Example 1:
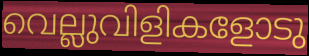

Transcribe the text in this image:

വെല്ലുവിളികളോടു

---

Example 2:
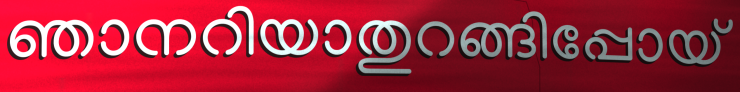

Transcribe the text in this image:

ഞാനറിയാതുറങ്ങിപ്പോയ്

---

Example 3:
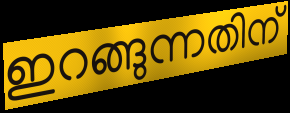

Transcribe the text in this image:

ഇറങ്ങുന്നതിന്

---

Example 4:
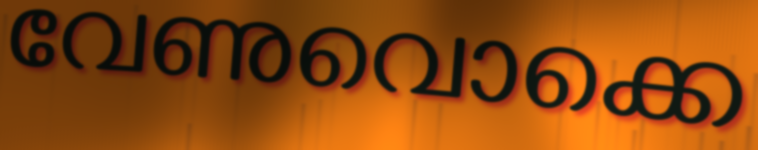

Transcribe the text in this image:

വേണുവൊക്കെ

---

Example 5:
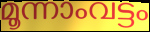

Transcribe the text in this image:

മൂന്നാംവട്ടം